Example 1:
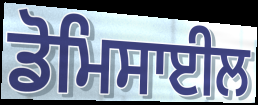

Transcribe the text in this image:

ਡੋਮਿਸਾਈਲ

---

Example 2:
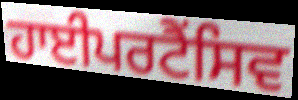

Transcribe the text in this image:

ਹਾਈਪਰਟੈਂਸਿਵ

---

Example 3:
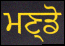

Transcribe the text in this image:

ਮਣ੍ਡੋ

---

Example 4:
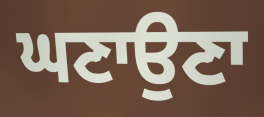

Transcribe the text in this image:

ਘਣਾਉਣਾ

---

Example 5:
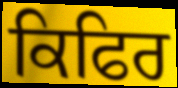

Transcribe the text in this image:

ਕਿਫਿਰ